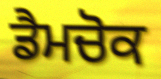
ਡੈਮਚੋਕ